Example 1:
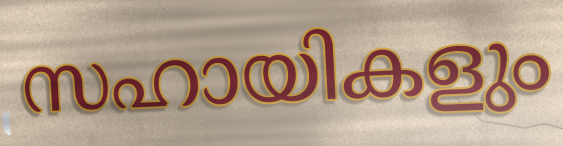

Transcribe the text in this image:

സഹായികളും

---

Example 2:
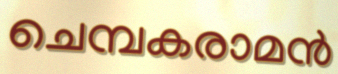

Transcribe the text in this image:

ചെമ്പകരാമൻ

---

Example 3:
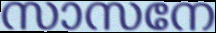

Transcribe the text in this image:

സാസനേ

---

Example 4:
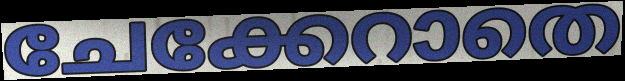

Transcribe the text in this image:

ചേക്കേറാതെ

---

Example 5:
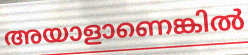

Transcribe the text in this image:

അയാളാണെങ്കിൽ